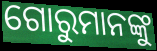
ଗୋରୁମାନଙ୍କୁ